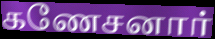
கணேசனார்